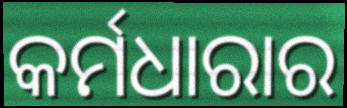
କର୍ମଧାରାର